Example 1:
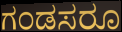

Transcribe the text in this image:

ಗಂಡಸರೂ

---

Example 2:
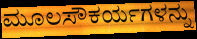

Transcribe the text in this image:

ಮೂಲಸೌಕರ್ಯಗಳನ್ನು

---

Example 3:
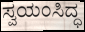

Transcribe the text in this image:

ಸ್ವಯಂಸಿದ್ಧ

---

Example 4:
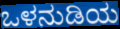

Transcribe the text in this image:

ಒಳನುಡಿಯ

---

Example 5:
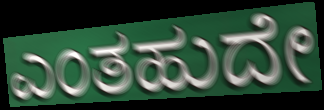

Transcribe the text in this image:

ಎಂತಹುದೇ